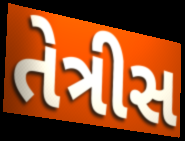
તેત્રીસ